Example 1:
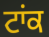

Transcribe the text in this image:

ਟਾਂਕ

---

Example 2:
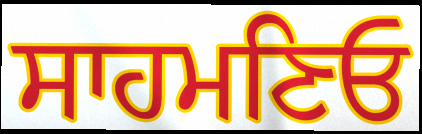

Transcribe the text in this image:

ਸਾਹਮਣਿਓ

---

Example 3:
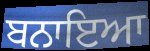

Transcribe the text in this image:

ਬਨਾਇਆ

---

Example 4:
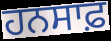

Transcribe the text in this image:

ਹਨਸਾਫ਼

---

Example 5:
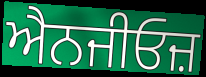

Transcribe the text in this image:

ਐਨਜੀਓਜ਼